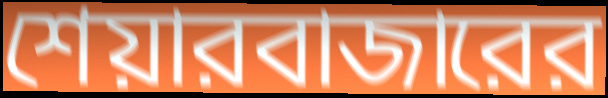
শেয়ারবাজারের